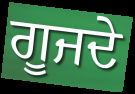
ਗੂਜਦੇ